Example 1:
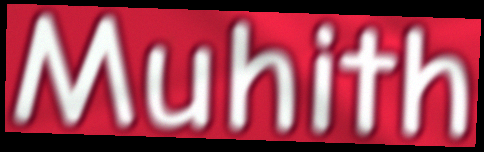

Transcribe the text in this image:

Muhith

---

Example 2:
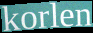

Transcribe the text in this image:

korlen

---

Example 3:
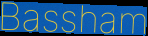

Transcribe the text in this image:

Bassham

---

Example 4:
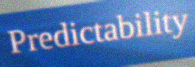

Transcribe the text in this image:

Predictability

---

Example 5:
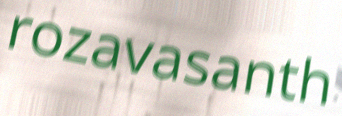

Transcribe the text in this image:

rozavasanth